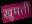
खुमती